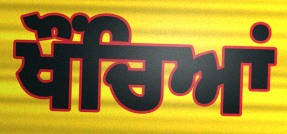
ਖੌਂਚਿਆਂ